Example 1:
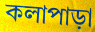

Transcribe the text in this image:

কলাপাড়া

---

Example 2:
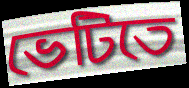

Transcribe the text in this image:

ভেটিতে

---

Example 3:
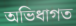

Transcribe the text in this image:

অভিধাগত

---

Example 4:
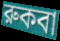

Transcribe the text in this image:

রুকবা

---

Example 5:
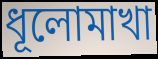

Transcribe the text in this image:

ধূলোমাখা